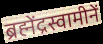
ब्रह्मेंद्रस्वामीनें